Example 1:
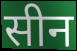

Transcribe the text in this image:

सीन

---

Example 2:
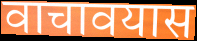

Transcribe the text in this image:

वाचावयास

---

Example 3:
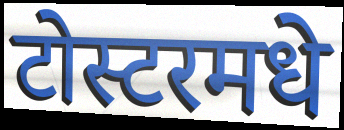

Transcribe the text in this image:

टोस्टरमधे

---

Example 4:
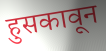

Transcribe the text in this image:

हुसकावून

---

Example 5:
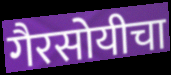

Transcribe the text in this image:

गैरसोयीचा